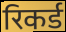
रिकर्ड